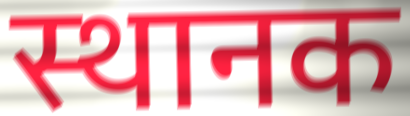
स्थानक